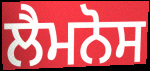
ਲੈਮਨੋਸ